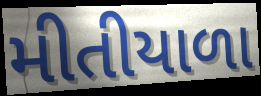
મીતીયાળા